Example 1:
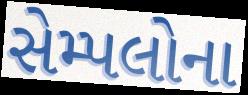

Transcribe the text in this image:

સેમ્પલોના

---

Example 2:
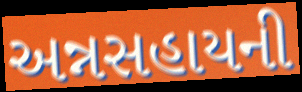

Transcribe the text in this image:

અન્નસહાયની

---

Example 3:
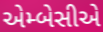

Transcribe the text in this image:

એમ્બેસીએ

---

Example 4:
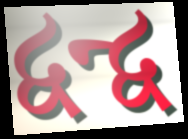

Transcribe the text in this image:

દ્વન્દ્વ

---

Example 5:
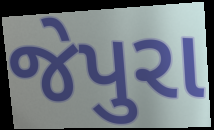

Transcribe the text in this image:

જેપુરા